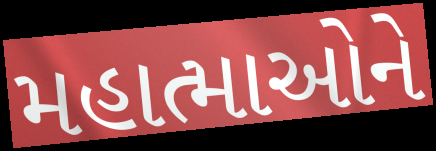
મહાત્માઓને